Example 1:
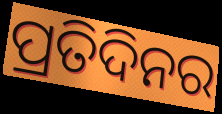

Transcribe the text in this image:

ପ୍ରତିଦିନର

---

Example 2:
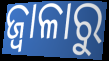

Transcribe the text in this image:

ଜ୍ଵାଳାରୁ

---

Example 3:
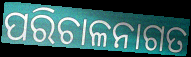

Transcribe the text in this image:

ପରିଚାଳନାଗତ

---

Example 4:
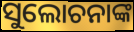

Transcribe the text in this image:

ସୁଲୋଚନାଙ୍କ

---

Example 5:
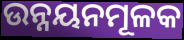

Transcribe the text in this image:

ଉନ୍ନୟନମୂଳକ